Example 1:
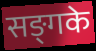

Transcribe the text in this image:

सङ्गके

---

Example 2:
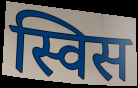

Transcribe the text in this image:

स्विस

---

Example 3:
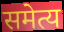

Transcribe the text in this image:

समेत्य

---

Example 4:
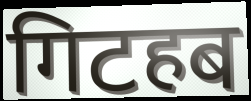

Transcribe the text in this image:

गिटहब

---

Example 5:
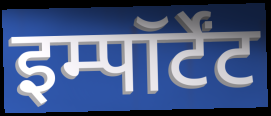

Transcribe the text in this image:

इम्पॉर्टेंट